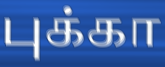
புக்கா